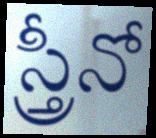
స్త్రీనో